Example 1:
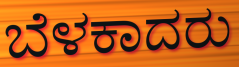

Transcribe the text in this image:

ಬೆಳಕಾದರು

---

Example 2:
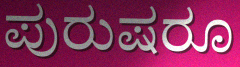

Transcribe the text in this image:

ಪುರುಷರೂ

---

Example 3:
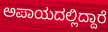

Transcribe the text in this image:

ಅಪಾಯದಲ್ಲಿದ್ದಾರೆ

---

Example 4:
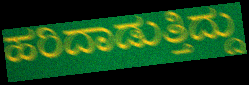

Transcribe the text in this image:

ಹರಿದಾಡುತ್ತಿದ್ದು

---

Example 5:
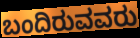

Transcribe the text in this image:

ಬಂದಿರುವವರು